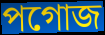
পগোজ